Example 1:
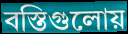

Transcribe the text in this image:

বস্তিগুলোয়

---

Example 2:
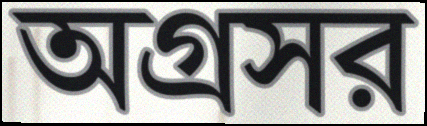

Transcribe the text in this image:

অগ্রসর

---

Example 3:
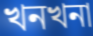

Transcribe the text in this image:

খনখনা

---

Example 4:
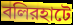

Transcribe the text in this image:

বলিরহাটে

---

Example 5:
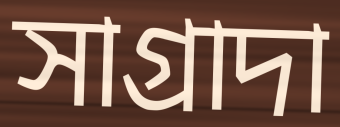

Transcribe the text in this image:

সাগ্রাদা